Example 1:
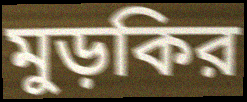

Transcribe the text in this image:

মুড়কির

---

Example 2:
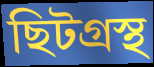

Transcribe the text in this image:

ছিটগ্রস্থ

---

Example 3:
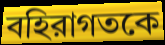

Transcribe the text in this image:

বহিরাগতকে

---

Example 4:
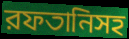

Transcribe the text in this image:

রফতানিসহ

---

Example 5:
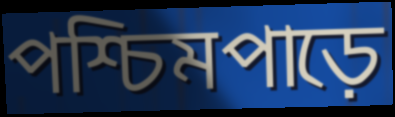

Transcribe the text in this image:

পশ্চিমপাড়ে